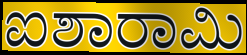
ಐಶಾರಾಮಿ